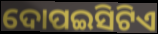
ଦୋପଇସିଟିଏ